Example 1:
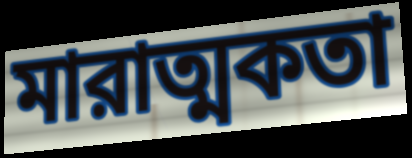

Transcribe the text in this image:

মারাত্মকতা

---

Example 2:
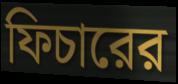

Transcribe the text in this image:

ফিচারের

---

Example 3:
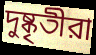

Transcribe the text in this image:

দুষ্কৃতীরা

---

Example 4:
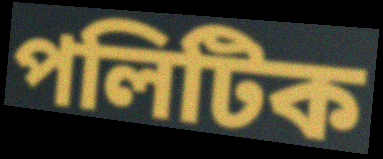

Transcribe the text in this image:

পলিটিক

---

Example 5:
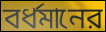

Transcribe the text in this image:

বর্ধমানের